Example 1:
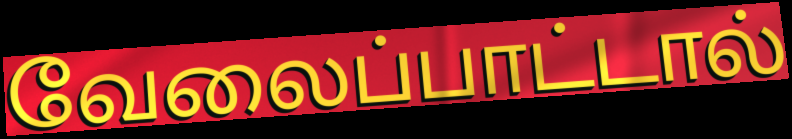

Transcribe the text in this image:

வேலைப்பாட்டால்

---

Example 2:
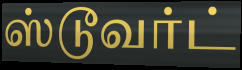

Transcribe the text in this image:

ஸ்டூவர்ட்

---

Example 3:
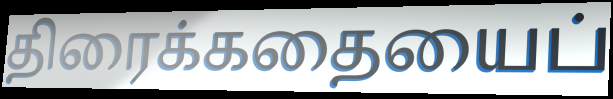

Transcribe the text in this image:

திரைக்கதையைப்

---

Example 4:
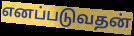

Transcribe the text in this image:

எனப்படுவதன்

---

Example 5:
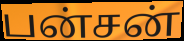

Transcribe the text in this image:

பன்சன்